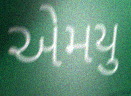
એમયુ